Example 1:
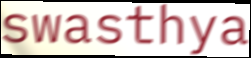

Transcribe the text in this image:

swasthya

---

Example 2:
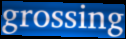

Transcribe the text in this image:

grossing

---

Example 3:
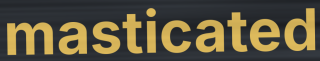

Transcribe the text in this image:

masticated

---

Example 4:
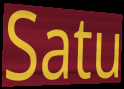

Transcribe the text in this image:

Satu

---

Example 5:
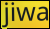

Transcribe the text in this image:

jiwa